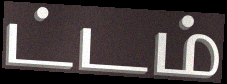
ட்டம்